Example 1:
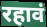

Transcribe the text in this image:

रहावं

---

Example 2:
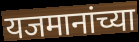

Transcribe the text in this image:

यजमानांच्या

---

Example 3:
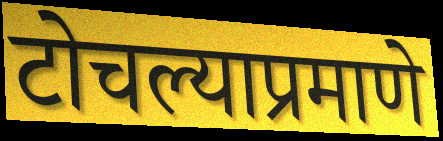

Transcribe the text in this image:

टोचल्याप्रमाणे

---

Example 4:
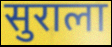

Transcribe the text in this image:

सुराला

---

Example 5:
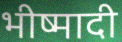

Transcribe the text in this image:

भीष्मादी